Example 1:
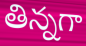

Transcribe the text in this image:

తిన్నగా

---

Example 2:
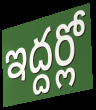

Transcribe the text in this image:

ఇద్దర్లో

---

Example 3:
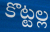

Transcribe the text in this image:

కొట్టల్ల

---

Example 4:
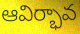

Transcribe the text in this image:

ఆవిర్భావ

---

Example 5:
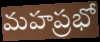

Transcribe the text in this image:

మహప్రభో